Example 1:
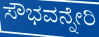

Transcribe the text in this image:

ಸೌಭವನ್ನೇರಿ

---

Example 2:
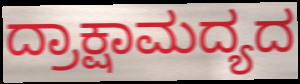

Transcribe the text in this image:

ದ್ರಾಕ್ಷಾಮದ್ಯದ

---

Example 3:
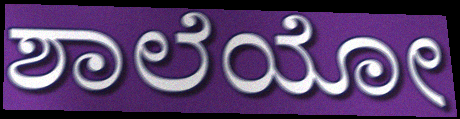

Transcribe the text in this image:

ಶಾಲೆಯೋ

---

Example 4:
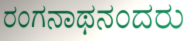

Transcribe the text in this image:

ರಂಗನಾಥನಂದರು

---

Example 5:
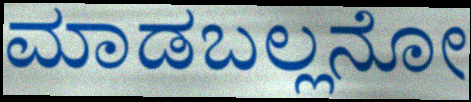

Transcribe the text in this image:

ಮಾಡಬಲ್ಲನೋ